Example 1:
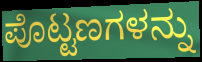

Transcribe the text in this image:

ಪೊಟ್ಟಣಗಳನ್ನು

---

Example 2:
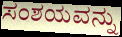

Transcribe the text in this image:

ಸಂಶಯವನ್ನು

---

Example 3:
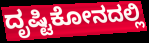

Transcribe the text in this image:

ದೃಷ್ಟಿಕೋನದಲ್ಲಿ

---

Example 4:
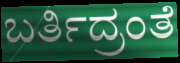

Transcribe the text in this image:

ಬರ್ತಿದ್ರಂತೆ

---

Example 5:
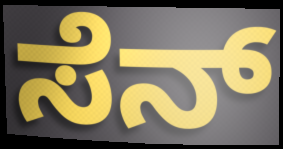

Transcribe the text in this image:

ಸೆನ್